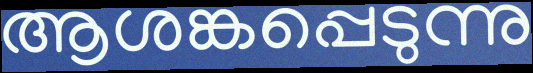
ആശങ്കപ്പെടുന്നു